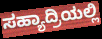
ಸಹ್ಯಾದ್ರಿಯಲ್ಲಿ